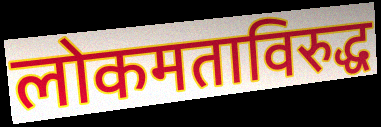
लोकमताविरुद्ध